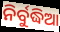
ନିର୍ବୁଦ୍ଧିଆ